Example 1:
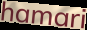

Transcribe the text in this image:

hamari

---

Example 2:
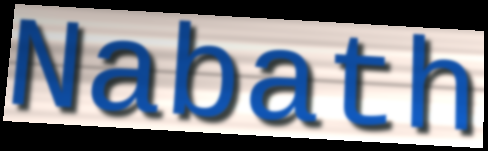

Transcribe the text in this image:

Nabath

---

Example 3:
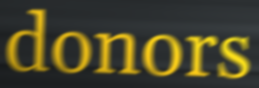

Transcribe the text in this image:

donors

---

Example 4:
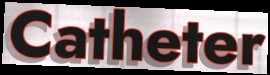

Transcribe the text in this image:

Catheter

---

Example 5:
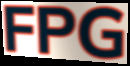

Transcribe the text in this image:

FPG